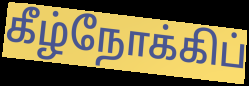
கீழ்நோக்கிப்